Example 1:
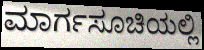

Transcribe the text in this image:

ಮಾರ್ಗಸೂಚಿಯಲ್ಲಿ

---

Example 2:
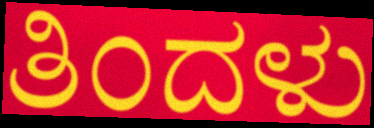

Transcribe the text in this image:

ತಿಂದಳು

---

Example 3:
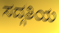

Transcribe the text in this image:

ಸದ್ಗತಿಯ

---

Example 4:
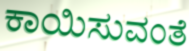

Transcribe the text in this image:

ಕಾಯಿಸುವಂತೆ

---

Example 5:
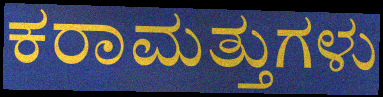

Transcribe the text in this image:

ಕರಾಮತ್ತುಗಳು